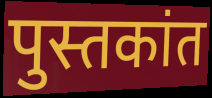
पुस्तकांत